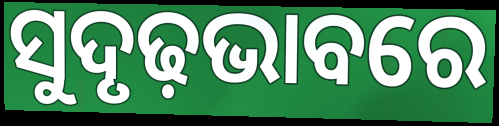
ସୁଦୃଢ଼ଭାବରେ